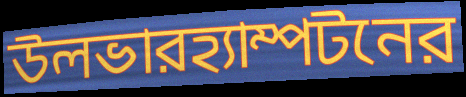
উলভারহ্যাম্পটনের